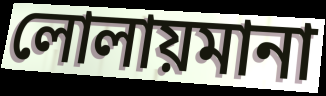
লোলায়মানা